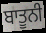
ਬਾਤੂਨੀ